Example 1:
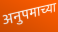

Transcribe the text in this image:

अनुपमाच्या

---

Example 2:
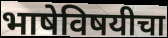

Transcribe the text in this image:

भाषेविषयीचा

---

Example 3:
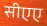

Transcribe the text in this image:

सीएए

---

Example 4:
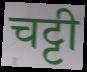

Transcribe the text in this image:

चट्टी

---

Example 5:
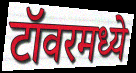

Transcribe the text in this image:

टॉवरमध्ये